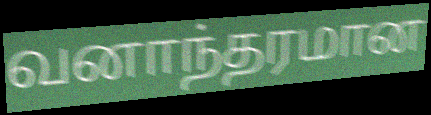
வனாந்தரமான